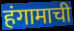
हंगामाची